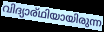
വിദ്യാര്ഥിയായിരുന്ന